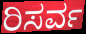
ರಿಸರ್ವ